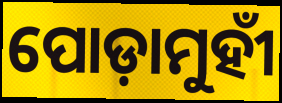
ପୋଡ଼ାମୁହୀଁ